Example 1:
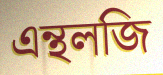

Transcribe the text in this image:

এন্থলজি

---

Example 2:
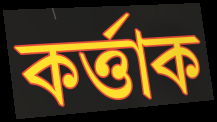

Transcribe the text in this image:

কৰ্ত্তাক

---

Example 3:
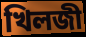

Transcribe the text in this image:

খিলজী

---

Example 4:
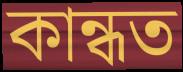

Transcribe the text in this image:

কান্ধত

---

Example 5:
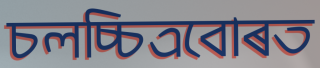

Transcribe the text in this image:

চলচ্চিত্ৰবোৰত